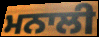
ਮਨਾਲੀ